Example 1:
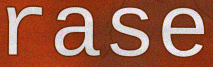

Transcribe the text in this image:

rase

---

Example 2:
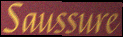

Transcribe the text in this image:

Saussure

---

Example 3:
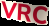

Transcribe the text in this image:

VRC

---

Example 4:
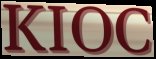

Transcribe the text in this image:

KIOC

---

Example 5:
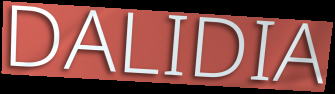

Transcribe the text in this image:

DALIDIA